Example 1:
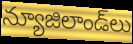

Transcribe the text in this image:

న్యూజిలాండ్‌లు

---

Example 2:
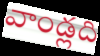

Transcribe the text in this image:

వాండ్లది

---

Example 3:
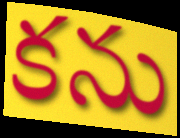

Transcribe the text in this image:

కను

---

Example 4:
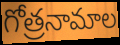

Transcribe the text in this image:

గోత్రనామాల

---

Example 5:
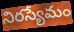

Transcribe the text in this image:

నిరస్యేమం